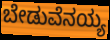
ಬೇಡುವೆನಯ್ಯ